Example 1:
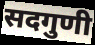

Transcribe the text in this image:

सदगुणी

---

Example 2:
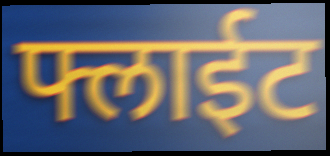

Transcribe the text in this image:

फ्लाईट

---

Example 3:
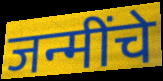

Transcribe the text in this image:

जन्मींचे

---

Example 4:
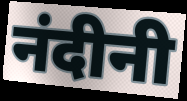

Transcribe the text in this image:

नंदीनी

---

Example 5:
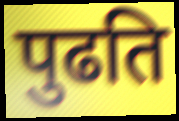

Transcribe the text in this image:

पुढति